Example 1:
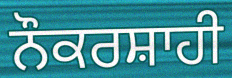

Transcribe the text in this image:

ਨੌਕਰਸ਼ਾਹੀ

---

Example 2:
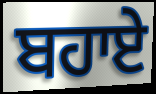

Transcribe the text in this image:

ਬਹਾਏ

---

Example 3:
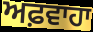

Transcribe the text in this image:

ਅਫ਼ਵਾਹਾ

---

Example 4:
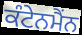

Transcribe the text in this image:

ਕੰਟੇਨਮੈਂਨ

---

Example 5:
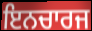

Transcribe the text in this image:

ਇਨਚਾਰਜ